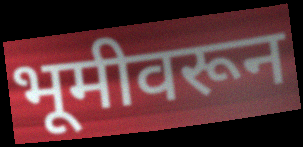
भूमीवरून